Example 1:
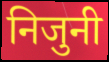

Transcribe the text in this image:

निजुनी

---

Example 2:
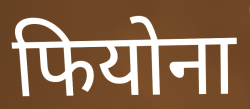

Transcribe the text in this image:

फियोना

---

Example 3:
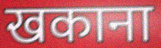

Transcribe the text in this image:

खकाना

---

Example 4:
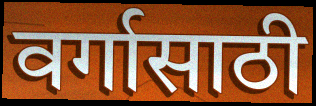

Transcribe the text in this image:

वर्गासाठी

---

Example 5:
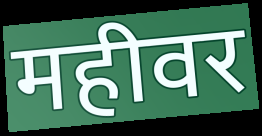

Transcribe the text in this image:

महीवर